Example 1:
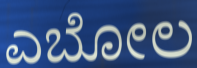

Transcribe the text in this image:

ಎಬೋಲ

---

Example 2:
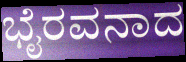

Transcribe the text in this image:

ಭೈರವನಾದ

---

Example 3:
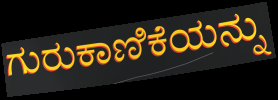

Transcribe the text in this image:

ಗುರುಕಾಣಿಕೆಯನ್ನು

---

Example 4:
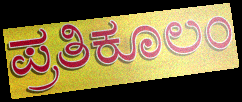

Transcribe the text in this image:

ಪ್ರತಿಕೂಲಂ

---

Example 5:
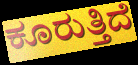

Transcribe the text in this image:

ಕೂರುತ್ತಿದೆ